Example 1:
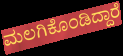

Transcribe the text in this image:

ಮಲಗಿಕೊಂಡಿದ್ದಾರೆ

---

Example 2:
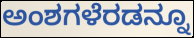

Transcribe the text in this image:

ಅಂಶಗಳೆರಡನ್ನೂ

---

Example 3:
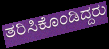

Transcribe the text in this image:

ತರಿಸಿಕೊಂಡಿದ್ದರು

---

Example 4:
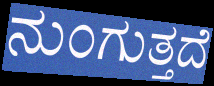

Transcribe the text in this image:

ನುಂಗುತ್ತದೆ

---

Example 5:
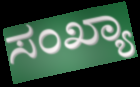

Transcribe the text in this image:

ಸಂಖ್ಯಾ